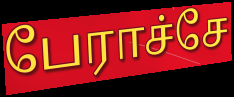
பேராச்சே